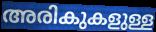
അരികുകളുള്ള